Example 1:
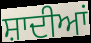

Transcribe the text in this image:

ਸ਼ਾਦੀਆਂ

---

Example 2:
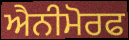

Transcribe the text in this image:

ਐਨੀਮੋਰਫ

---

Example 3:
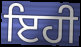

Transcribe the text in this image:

ਇਹੀ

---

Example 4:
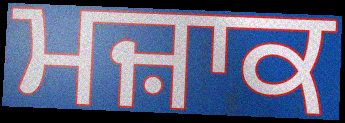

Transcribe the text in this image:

ਮਜ਼ਾਕ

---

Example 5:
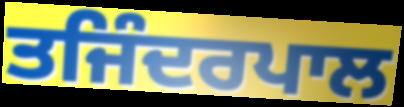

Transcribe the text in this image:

ਤਜਿੰਦਰਪਾਲ